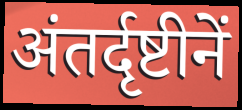
अंतर्दृष्टीनें